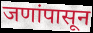
जणांपासून